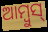
ଆମ୍ବୁସ୍